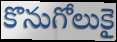
కొనుగోలుకై